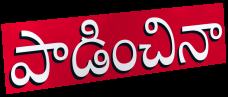
పాడించినా